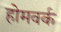
होमवर्क